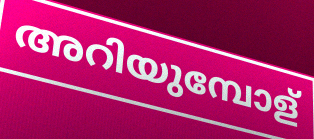
അറിയുമ്പോള്